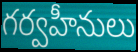
గర్వహీనులు